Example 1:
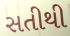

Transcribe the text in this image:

સતીથી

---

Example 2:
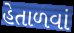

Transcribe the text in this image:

હેતાળવાં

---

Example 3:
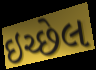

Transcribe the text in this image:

ઇચ્છેલ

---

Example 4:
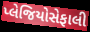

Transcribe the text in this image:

પ્લેજિયોસેફાલી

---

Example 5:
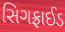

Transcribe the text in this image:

સિગફ્રાઈડ